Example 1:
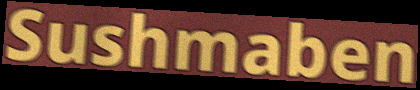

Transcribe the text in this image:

Sushmaben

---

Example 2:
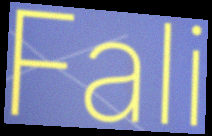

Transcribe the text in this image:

Fali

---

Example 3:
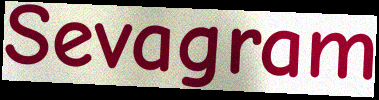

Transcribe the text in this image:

Sevagram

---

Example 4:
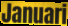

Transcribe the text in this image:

Januari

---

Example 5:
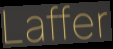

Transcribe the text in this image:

Laffer